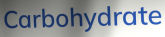
Carbohydrate